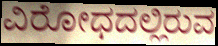
ವಿರೋಧದಲ್ಲಿರುವ